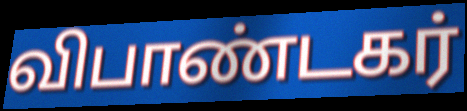
விபாண்டகர்